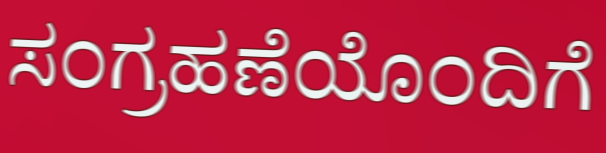
ಸಂಗ್ರಹಣೆಯೊಂದಿಗೆ